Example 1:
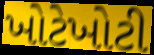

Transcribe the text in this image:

ખોટેખોટી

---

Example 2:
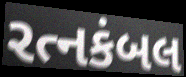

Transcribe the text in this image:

રત્નકંબલ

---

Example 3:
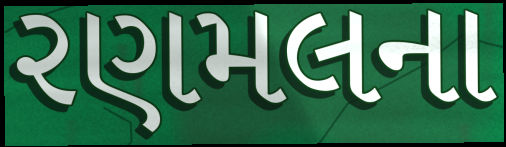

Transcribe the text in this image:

રણમલના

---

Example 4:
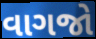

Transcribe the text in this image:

વાગજો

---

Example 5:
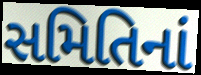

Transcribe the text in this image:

સમિતિનાં